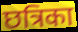
छत्रिका